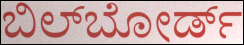
ಬಿಲ್‌ಬೋರ್ಡ್